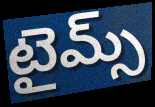
టైమ్స్